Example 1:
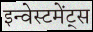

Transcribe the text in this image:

इन्वेस्टमेंट्स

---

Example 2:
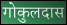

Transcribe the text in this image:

गोकुलदास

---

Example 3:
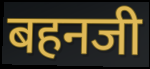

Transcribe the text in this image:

बहनजी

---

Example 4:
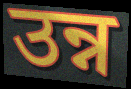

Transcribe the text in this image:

उन्न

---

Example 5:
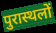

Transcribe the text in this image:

पुरास्थलों